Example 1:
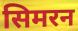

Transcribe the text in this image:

सिमरन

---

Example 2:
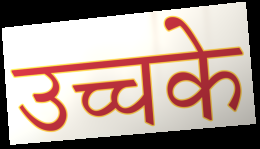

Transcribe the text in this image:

उच्चके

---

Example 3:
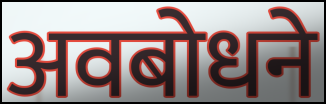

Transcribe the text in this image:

अवबोधने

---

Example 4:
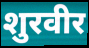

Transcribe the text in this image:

शुरवीर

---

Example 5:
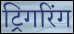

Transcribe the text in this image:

ट्रिगरिंग